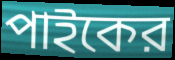
পাইকের